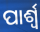
ପାର୍ଶ୍ୱ